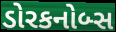
ડોરકનોબ્સ